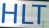
HLT